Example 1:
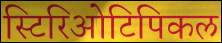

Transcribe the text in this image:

स्टिरिओटिपिकल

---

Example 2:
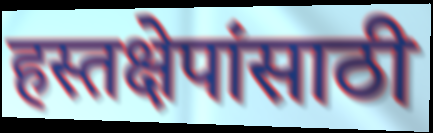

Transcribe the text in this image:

हस्तक्षेपांसाठी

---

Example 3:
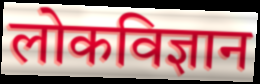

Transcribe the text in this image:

लोकविज्ञान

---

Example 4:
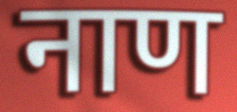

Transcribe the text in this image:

नाण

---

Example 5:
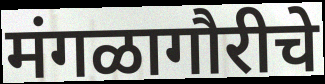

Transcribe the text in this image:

मंगळागौरीचे